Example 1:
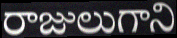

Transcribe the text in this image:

రాజులుగాని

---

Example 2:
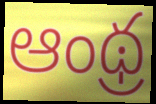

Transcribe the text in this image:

ఆంథ్ర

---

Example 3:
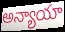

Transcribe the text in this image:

అన్యాయా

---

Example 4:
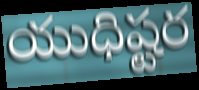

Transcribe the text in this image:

యుధిష్టర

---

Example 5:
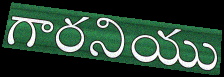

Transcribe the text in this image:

గారనియు